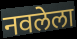
नवलेला